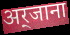
अर्जाना